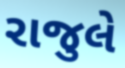
રાજુલે